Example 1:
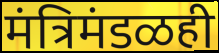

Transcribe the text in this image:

मंत्रिमंडळही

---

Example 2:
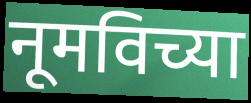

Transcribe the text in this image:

नूमविच्या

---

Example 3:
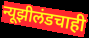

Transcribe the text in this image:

न्यूझीलंडचाही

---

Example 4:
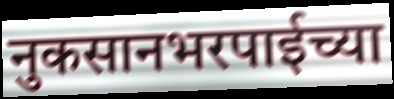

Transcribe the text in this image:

नुकसानभरपाईच्या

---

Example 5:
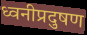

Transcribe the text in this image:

ध्वनीप्रदुषण